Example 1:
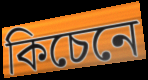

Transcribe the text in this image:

কিচেনে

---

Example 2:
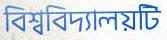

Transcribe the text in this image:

বিশ্ববিদ্যালয়টি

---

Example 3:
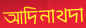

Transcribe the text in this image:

আদিনাথদা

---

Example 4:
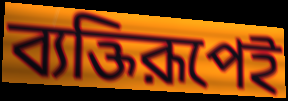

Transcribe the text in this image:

ব্যক্তিরূপেই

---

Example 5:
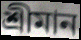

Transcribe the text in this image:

শ্রীমান